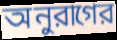
অনুরাগের